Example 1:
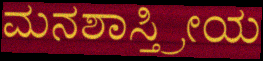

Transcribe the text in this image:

ಮನಶಾಸ್ತ್ರೀಯ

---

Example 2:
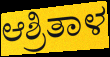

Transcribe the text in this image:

ಆಶ್ರಿತಾಳ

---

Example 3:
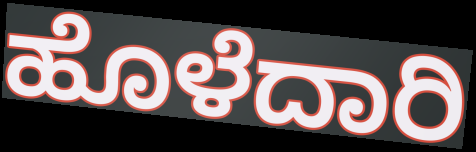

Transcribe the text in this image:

ಹೊಳೆದಾರಿ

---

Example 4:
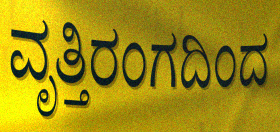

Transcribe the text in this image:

ವೃತ್ತಿರಂಗದಿಂದ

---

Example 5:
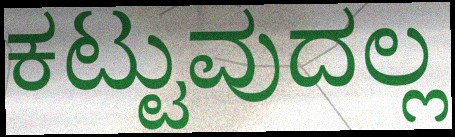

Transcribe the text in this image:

ಕಟ್ಟುವುದಲ್ಲ